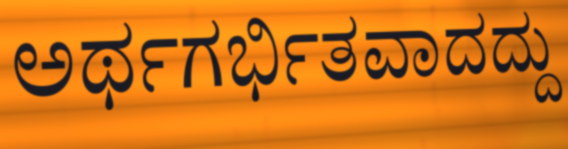
ಅರ್ಥಗರ್ಭಿತವಾದದ್ದು